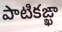
పాటికఙ్ఖా